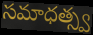
సమాధత్స్వ